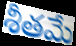
శీతమే